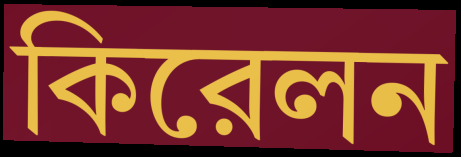
কিরেলন